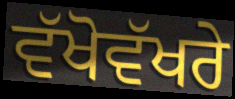
ਵੱਖੋਵੱਖਰੇ